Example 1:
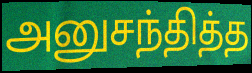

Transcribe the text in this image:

அனுசந்தித்த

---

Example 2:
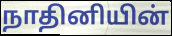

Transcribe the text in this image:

நாதினியின்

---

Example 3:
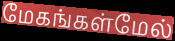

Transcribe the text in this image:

மேகங்கள்மேல்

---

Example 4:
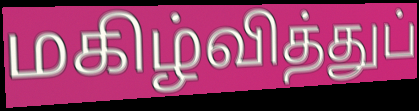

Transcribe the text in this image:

மகிழ்வித்துப்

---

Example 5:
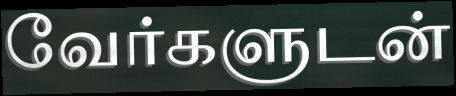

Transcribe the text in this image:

வேர்களுடன்